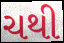
ચથી